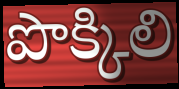
పొక్కిలి